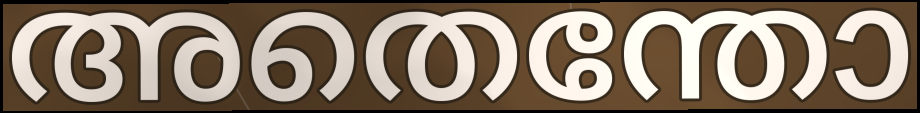
അതെന്തോ